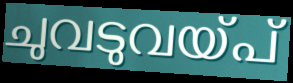
ചുവടുവയ്പ്